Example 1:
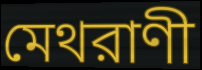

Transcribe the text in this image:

মেথরাণী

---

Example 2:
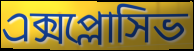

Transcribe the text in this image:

এক্সপ্লোসিভ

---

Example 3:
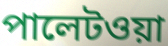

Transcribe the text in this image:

পালেটওয়া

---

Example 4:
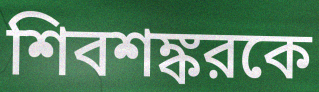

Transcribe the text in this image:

শিবশঙ্করকে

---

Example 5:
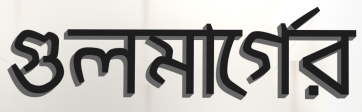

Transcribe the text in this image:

গুলমার্গের